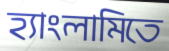
হ্যাংলামিতে